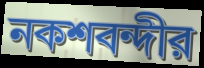
নকশবন্দীর